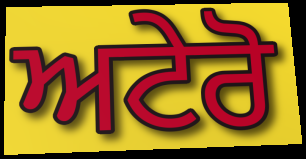
ਅਟੇਰੋ